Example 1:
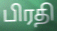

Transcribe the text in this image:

பிரதி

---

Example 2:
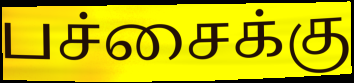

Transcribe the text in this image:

பச்சைக்கு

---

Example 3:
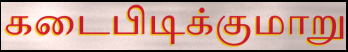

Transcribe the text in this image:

கடைபிடிக்குமாறு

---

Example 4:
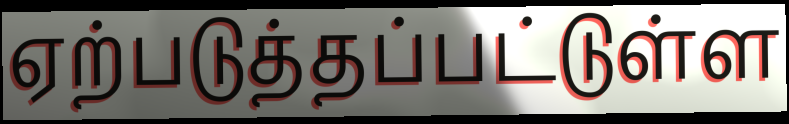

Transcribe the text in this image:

ஏற்படுத்தப்பட்டுள்ள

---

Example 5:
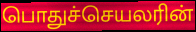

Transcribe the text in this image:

பொதுச்செயலரின்